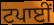
ਟਪਾਈਂ